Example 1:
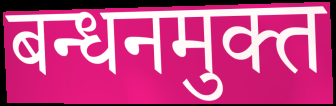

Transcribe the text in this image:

बन्धनमुक्त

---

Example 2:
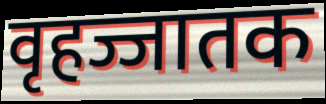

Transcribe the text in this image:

वृहज्जातक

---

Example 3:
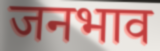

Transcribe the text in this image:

जनभाव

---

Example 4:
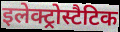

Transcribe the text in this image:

इलेक्ट्रोस्टैटिक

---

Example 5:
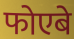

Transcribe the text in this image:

फोएबे